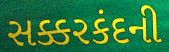
સક્કરકંદની